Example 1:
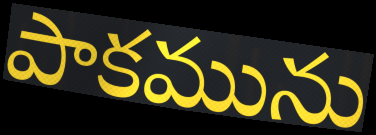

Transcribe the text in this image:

పాకమును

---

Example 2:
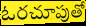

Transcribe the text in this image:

ఓరచూపుతో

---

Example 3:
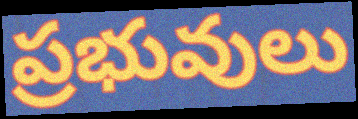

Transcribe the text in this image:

ప్రభువులు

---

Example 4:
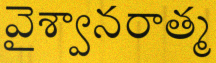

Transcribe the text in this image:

వైశ్వానరాత్మ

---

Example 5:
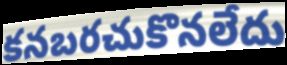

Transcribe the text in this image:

కనబరచుకొనలేదు